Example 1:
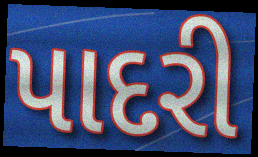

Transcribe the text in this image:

પાદરી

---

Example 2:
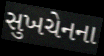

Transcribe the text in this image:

સુખચેનના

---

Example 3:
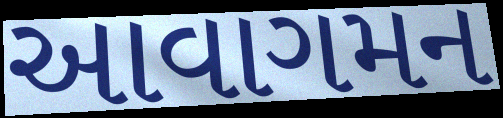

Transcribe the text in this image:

આવાગમન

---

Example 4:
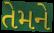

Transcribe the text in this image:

તેમને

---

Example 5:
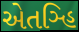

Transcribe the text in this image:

એતઞ્હિ